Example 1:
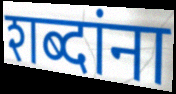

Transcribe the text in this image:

शब्दांना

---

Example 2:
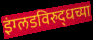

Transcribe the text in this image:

इंग्लडविरुद्धच्या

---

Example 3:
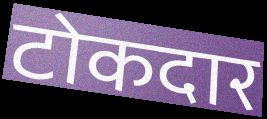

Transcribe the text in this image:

टोकदार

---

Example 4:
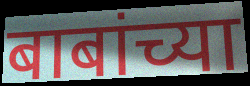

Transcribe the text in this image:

बाबांच्या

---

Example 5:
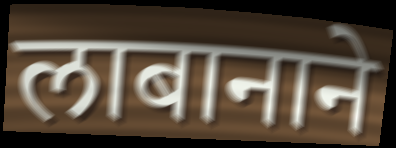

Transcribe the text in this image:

लाबानाने